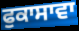
ਫੁਕਾਸਾਵਾ